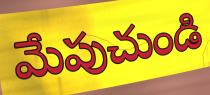
మేపుచుండి